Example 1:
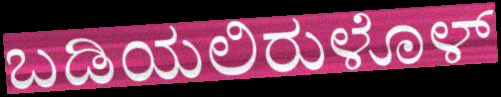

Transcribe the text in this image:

ಬಡಿಯಲಿರುಳೊಳ್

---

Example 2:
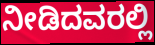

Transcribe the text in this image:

ನೀಡಿದವರಲ್ಲಿ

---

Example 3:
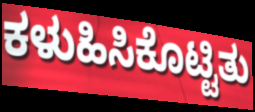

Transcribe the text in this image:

ಕಳುಹಿಸಿಕೊಟ್ಟಿತು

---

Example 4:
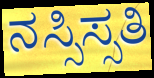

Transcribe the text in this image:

ನಸ್ಸಿಸ್ಸತಿ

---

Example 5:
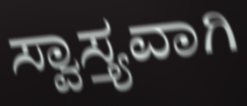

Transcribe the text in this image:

ಸ್ವಾಸ್ತ್ಯವಾಗಿ